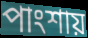
পাংশায়